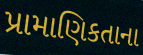
પ્રામાણિકતાના